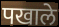
पखाले